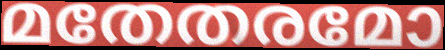
മതേതരമോ